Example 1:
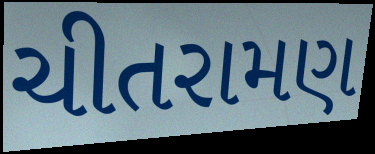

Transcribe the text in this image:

ચીતરામણ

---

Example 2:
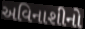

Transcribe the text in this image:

અવિનાશીનો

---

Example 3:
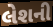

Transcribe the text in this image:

લેશની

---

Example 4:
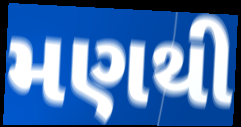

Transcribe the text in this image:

મણથી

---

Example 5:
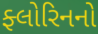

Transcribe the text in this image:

ફ્લોરિનનો